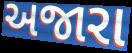
અજારા